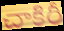
చాకిరీ